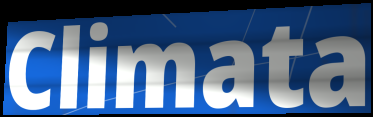
Climata